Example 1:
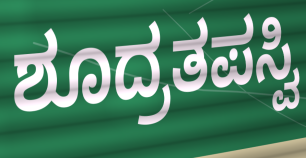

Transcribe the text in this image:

ಶೂದ್ರತಪಸ್ವಿ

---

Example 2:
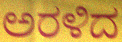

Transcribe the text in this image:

ಅರಳಿದ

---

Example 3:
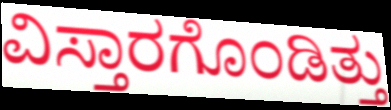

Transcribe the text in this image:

ವಿಸ್ತಾರಗೊಂಡಿತ್ತು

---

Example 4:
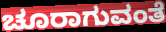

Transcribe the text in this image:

ಚೂರಾಗುವಂತೆ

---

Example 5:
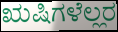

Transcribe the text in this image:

ಋಷಿಗಳೆಲ್ಲರ